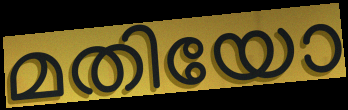
മതിയോ